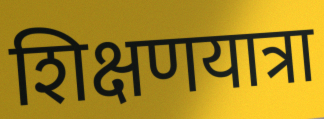
शिक्षणयात्रा